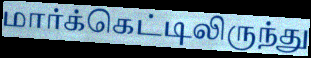
மார்க்கெட்டிலிருந்து